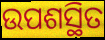
ଉପଶସ୍ଥିତ